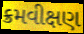
ક્રમવીક્ષણ